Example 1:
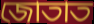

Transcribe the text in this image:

জোতাত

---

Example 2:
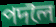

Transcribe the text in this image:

পদলৈ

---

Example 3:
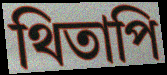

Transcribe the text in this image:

থিতাপি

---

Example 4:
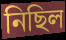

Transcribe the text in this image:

নিছিল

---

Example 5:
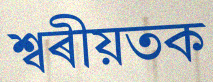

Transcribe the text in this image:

শ্বৰীয়তক